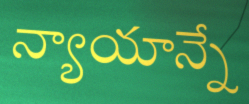
న్యాయాన్నే